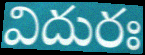
విదురః